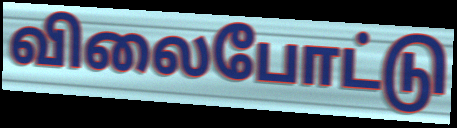
விலைபோட்டு